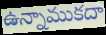
ఉన్నాముకదా